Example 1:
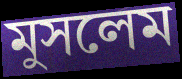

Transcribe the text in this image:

মুসলেম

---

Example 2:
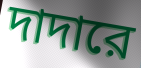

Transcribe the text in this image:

দাদারে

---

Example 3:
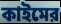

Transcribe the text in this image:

কাইমের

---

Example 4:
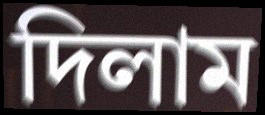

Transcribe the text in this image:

দিলাম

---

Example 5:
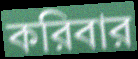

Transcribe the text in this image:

করিবার